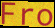
Fro